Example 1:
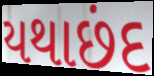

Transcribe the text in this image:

યથાછંદ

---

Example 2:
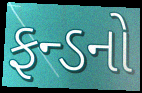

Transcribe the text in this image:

ફન્ડનો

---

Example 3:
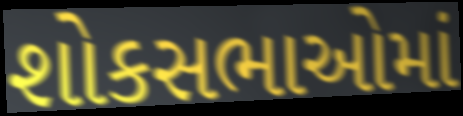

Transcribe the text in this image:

શોકસભાઓમાં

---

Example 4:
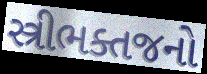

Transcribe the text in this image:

સ્ત્રીભક્તજનો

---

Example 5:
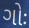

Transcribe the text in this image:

ગોઃ